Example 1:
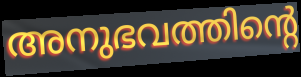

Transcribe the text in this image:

അനുഭവത്തിന്റെ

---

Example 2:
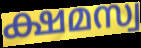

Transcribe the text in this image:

ക്ഷമസ്വ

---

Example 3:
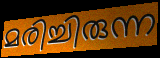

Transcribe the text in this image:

മരിച്ചിരുന്ന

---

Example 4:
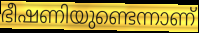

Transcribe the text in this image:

ഭീഷണിയുണ്ടെന്നാണ്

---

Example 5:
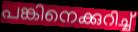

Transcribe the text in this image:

പങ്കിനെക്കുറിച്ച്